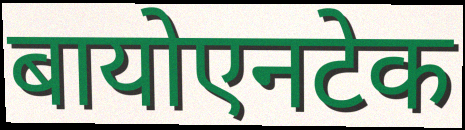
बायोएनटेक